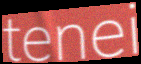
tenei